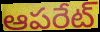
ఆపరేట్